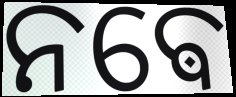
ନଵେ